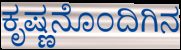
ಕೃಷ್ಣನೊಂದಿಗಿನ